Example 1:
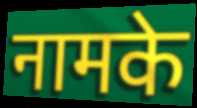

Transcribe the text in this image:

नामके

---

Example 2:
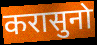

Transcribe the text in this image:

करासुनो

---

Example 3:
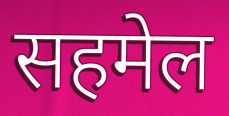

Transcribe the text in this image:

सहमेल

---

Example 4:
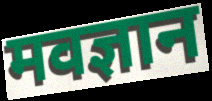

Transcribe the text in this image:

मवज्ञान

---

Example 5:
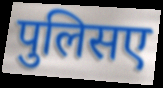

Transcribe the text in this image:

पुलिसए